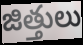
జిత్తులు